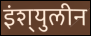
इंश्युलीन